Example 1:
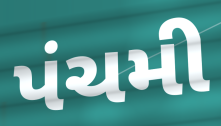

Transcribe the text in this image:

પંચમી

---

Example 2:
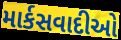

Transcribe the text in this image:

માર્કસવાદીઓ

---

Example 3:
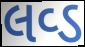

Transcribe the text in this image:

લવ્ડ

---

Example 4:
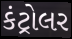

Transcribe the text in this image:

કંટ્રોલર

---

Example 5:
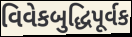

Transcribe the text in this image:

વિવેકબુદ્ધિપૂર્વક